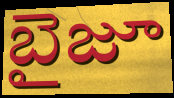
బైజూ